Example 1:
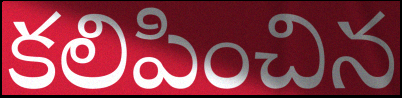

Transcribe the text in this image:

కలిపించిన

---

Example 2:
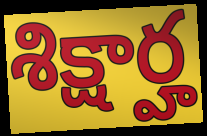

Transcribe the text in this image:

శిక్షార్హ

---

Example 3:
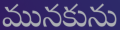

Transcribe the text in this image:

మునకును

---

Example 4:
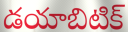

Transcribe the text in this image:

డయాబిటిక్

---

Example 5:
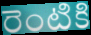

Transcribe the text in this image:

రెంటికి